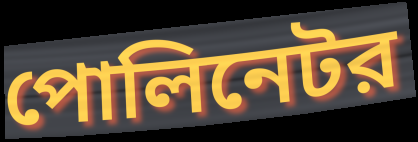
পোলিনেটর